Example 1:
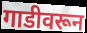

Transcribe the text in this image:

गाडीवरून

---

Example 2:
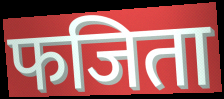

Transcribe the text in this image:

फजिता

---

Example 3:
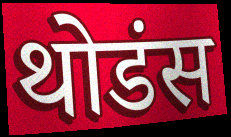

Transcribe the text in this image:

थोडंस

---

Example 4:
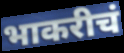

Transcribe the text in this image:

भाकरीचं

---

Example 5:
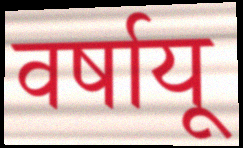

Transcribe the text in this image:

वर्षायू